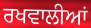
ਰਖਵਾਲੀਆਂ